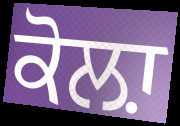
ਕੋਲ਼ਾ